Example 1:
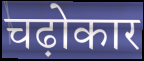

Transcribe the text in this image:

चढ़ोकार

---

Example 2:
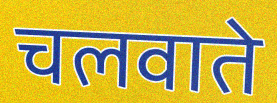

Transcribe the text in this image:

चलवाते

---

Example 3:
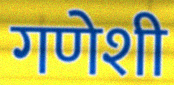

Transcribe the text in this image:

गणेशी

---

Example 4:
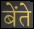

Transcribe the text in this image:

बेंते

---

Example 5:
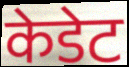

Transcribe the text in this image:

केडेट